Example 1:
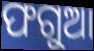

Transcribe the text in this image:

ଫଗୁଆ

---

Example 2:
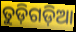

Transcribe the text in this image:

ତୁଡ଼ିଗଡ଼ିଆ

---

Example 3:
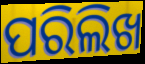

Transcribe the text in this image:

ପରିଲିଖ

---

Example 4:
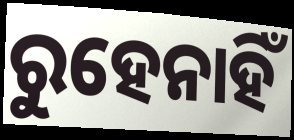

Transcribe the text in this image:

ରୁହେନାହିଁ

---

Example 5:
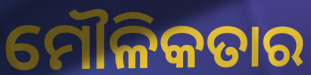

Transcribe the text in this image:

ମୌଳିକତାର